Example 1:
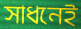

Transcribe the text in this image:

সাধনেই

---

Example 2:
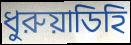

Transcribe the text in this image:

ধুরুয়াডিহি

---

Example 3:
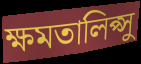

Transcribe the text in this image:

ক্ষমতালিপ্সু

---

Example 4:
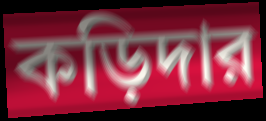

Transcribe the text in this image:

কড়িদার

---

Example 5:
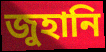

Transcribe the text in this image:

জুহানি